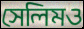
সেলিমও